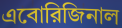
এবোরিজিনাল